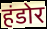
हंडोर